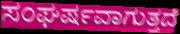
ಸಂಘರ್ಷವಾಗುತ್ತದೆ